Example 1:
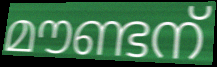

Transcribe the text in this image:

മൗണ്ടന്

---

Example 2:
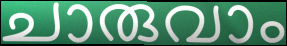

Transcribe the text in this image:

ചാരുവാം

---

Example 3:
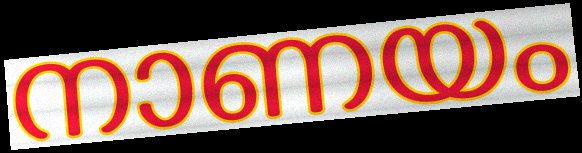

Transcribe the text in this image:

നാണയം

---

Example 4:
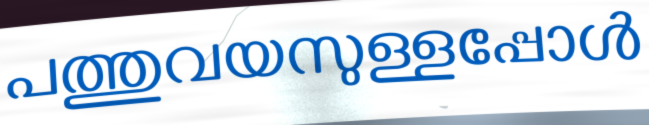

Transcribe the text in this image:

പത്തുവയസുള്ളപ്പോൾ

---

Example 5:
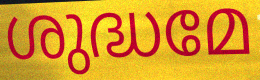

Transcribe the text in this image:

ശുദ്ധമേ